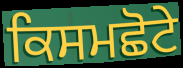
ਕਿਸਮਛੋਟੇ